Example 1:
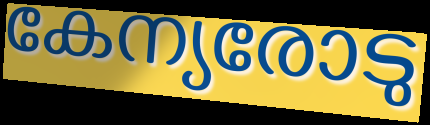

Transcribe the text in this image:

കേന്യരോടു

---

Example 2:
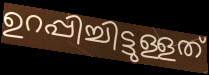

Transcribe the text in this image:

ഉറപ്പിച്ചിട്ടുള്ളത്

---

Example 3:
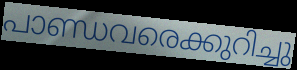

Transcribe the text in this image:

പാണ്ഡവരെക്കുറിച്ചു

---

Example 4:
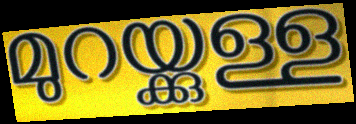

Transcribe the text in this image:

മുറയ്ക്കുള്ള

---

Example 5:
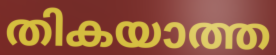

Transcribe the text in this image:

തികയാത്ത